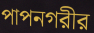
পাপনগরীর